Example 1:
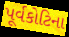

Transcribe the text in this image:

પૂર્વકોટિના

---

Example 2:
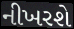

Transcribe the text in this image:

નીખરશે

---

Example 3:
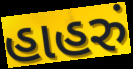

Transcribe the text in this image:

હાહરું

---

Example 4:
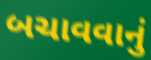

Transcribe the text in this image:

બચાવવાનું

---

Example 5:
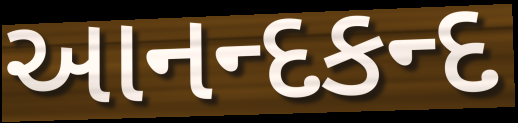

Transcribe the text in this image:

આનન્દકન્દ